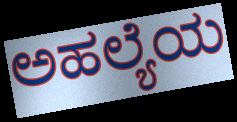
ಅಹಲ್ಯೆಯ